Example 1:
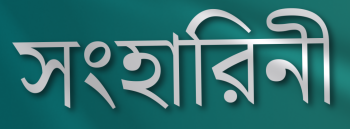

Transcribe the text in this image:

সংহারিনী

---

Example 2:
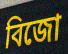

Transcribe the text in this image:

বিজো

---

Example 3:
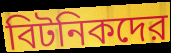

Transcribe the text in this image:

বিটনিকদের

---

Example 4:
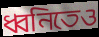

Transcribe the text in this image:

ধ্বনিতেও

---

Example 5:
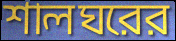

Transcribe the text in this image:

শালঘরের